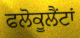
ਫਲੋਕੂਲੈਂਟਾਂ